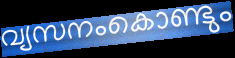
വ്യസനംകൊണ്ടും